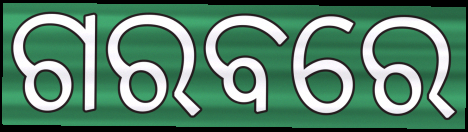
ଗରବରେ